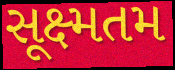
સૂક્ષ્મતમ